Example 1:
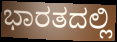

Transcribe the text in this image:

ಭಾರತದಲ್ಲಿ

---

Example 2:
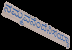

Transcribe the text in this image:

ನಮ್ಮವನೆಂದೆನಿಸಯ್ಯಾ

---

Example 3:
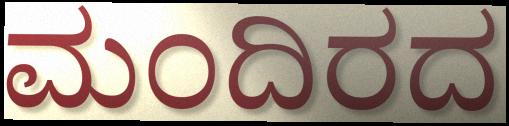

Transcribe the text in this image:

ಮಂದಿರದ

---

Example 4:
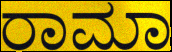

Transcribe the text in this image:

ರಾಮಾ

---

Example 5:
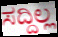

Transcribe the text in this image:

ಸದ್ದಿಲ್ಲ